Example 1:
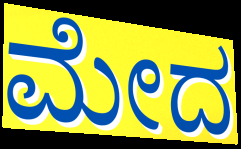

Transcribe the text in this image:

ಮೇದ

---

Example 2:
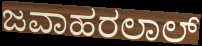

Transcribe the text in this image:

ಜವಾಹರಲಾಲ್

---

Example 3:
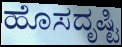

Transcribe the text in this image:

ಹೊಸದೃಷ್ಟಿ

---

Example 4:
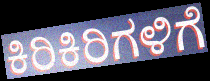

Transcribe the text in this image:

ಕಿರಿಕಿರಿಗಳಿಗೆ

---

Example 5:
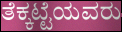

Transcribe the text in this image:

ತೆಕ್ಕಟ್ಟೆಯವರು